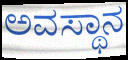
ಅವಸ್ಥಾನ